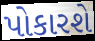
પોકારશે